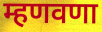
म्हणवणा